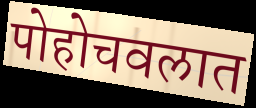
पोहोचवलात